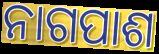
ନାଗପାଶ